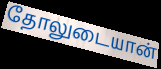
தோலுடையான்